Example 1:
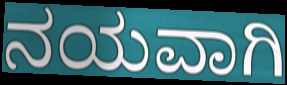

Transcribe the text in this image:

ನಯವಾಗಿ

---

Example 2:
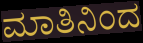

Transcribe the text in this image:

ಮಾತಿನಿಂದ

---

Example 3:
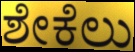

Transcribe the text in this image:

ಶೇಕೆಲು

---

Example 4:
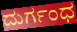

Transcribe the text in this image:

ದುರ್ಗಂಧ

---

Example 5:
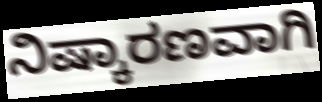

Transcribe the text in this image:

ನಿಷ್ಕಾರಣವಾಗಿ